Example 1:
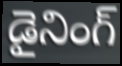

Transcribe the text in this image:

డైనింగ్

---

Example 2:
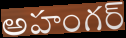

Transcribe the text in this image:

అహంగర్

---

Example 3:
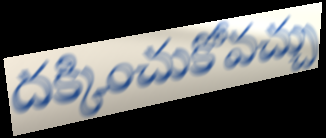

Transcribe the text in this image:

దక్కించుకోవచ్చు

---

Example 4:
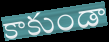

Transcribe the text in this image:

కాకుండా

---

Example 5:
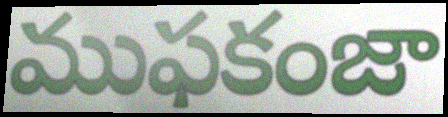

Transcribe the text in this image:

ముఫకంజా